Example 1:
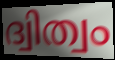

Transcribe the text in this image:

ദ്വിത്വം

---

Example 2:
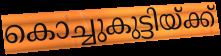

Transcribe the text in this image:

കൊച്ചുകുട്ടിയ്ക്ക്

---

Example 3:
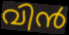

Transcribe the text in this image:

വിൻ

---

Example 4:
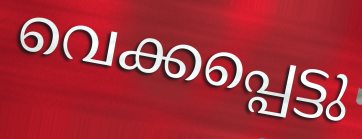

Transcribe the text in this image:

വെക്കപ്പെട്ടു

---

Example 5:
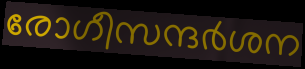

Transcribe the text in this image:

രോഗീസന്ദർശന